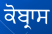
ਕੋਬ੍ਰਾਸ